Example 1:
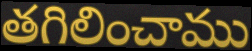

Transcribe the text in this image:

తగిలించాము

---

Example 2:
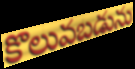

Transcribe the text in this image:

కొలువబడును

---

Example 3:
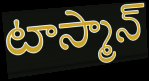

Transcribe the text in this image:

టాస్మాన్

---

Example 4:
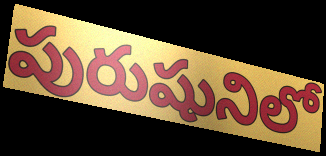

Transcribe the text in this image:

పురుషునిలో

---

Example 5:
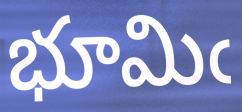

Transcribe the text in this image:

భూమిఁ